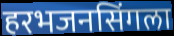
हरभजनसिंगला